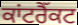
ਕਾਂਟਰੈੱਕਟ